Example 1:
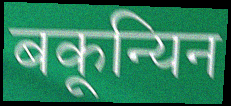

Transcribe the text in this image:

बकून्यिन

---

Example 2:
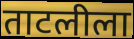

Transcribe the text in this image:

ताटलीला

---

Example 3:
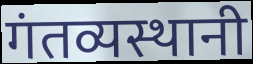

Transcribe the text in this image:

गंतव्यस्थानी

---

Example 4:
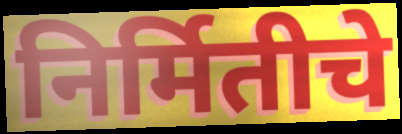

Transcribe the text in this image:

निर्मितीचे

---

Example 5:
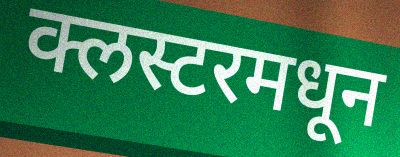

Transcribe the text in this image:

क्लस्टरमधून